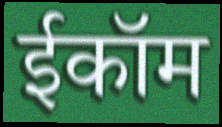
ईकॉम